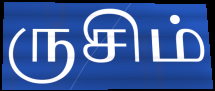
ருசிம்